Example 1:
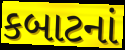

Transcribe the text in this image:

કબાટનાં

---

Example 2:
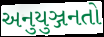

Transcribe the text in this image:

અનુયુઞ્જનતો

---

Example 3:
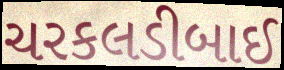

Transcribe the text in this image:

ચરકલડીબાઈ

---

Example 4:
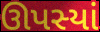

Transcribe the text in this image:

ઊપસ્યાં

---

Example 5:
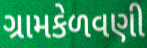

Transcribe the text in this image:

ગ્રામકેળવણી